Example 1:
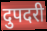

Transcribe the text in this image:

दुपदरी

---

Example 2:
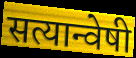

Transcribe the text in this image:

सत्यान्वेषी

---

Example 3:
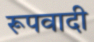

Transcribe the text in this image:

रूपवादी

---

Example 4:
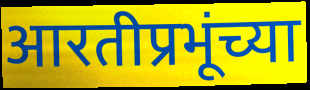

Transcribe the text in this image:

आरतीप्रभूंच्या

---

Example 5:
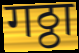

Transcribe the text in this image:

गठ्ठा